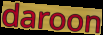
daroon